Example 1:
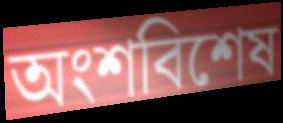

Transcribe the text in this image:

অংশবিশেষ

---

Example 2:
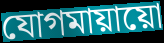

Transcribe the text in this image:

যোগমায়ায়ো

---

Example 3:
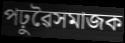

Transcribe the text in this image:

পঢ়ুৱৈসমাজক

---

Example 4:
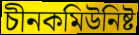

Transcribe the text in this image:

চীনকমিউনিষ্ট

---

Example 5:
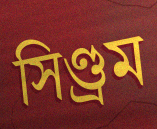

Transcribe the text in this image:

সিণ্ড্ৰম